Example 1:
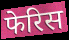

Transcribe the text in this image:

फेरिस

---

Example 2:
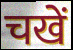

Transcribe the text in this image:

चखें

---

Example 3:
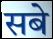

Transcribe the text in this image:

सबे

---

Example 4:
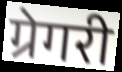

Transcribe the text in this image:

ग्रेगरी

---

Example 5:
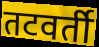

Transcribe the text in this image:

तटवर्ती